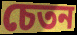
চেতন